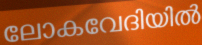
ലോകവേദിയിൽ